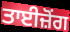
ਤਾਈਜ਼ੋਂਗ